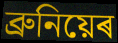
ব্ৰুনিয়েৰ